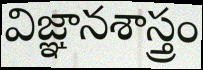
విజ్ఞానశాస్త్రం